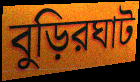
বুড়িরঘাট